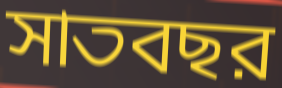
সাতবছর